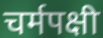
चर्मपक्षी